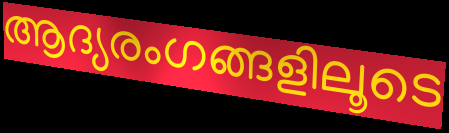
ആദ്യരംഗങ്ങളിലൂടെ